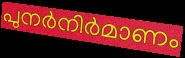
പുനർനിർമാണം